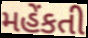
મહેંકતી